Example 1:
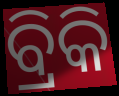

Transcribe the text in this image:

ବ୍ରିକି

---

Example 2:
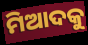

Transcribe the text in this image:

ମିଆଦକୁ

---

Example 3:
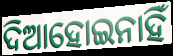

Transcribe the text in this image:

ଦିଆହୋଇନାହିଁ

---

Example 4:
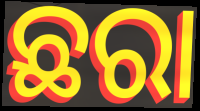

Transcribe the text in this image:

ଛରା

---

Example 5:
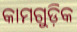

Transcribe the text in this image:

କାମଗୁଡ଼ିକ